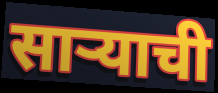
सार्‍याची